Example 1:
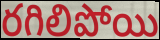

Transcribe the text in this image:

రగిలిపోయి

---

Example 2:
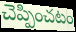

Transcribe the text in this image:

చెప్పించటం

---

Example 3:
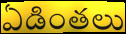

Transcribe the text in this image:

ఏడింతలు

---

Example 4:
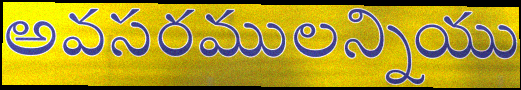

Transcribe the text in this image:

అవసరములన్నియు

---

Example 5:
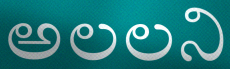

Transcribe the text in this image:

అలలని